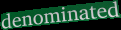
denominated